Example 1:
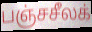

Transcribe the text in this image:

பஞ்சசீலக்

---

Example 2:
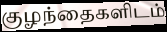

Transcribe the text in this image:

குழந்தைகளிடம்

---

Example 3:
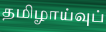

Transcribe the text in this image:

தமிழாய்வுப்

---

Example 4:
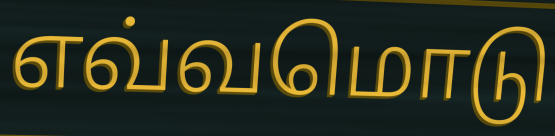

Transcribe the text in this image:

எவ்வமொடு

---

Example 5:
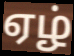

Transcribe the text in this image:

ஏழ்